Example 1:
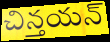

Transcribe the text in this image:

చిన్తయన్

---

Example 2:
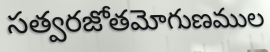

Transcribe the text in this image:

సత్వరజోతమోగుణముల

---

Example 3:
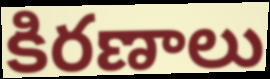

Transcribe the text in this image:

కిరణాలు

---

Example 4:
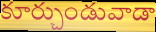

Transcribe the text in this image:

కూర్చుండువాడా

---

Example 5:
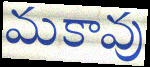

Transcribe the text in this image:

మకావు